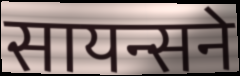
सायन्सने